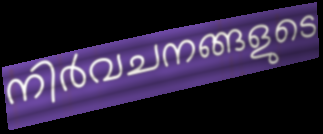
നിർവചനങ്ങളുടെ